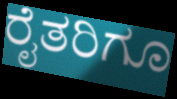
ರೈತರಿಗೂ